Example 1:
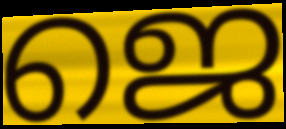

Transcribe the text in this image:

ജെ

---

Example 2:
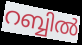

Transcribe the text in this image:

റബ്ബിൽ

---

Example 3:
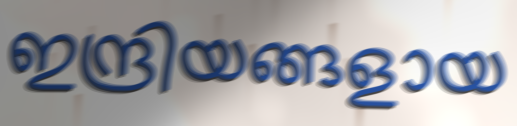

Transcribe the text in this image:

ഇന്ദ്രിയങ്ങളായ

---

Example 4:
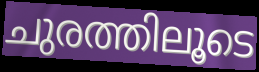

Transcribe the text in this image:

ചുരത്തിലൂടെ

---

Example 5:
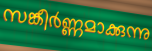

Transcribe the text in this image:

സങ്കീർണ്ണമാക്കുന്നു